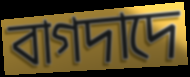
বাগদাদে